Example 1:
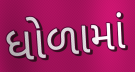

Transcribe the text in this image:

ધોળામાં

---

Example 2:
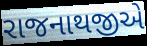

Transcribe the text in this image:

રાજનાથજીએ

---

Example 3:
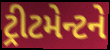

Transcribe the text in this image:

ટ્રીટમેન્ટને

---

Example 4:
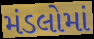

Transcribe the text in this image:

મંડલોમાં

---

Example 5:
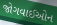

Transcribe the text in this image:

જોગવાઈઓન